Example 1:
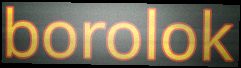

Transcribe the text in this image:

borolok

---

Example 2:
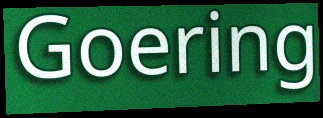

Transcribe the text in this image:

Goering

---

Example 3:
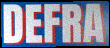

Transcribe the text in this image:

DEFRA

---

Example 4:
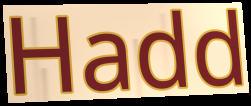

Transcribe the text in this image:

Hadd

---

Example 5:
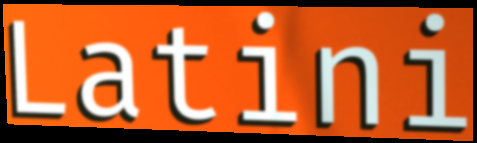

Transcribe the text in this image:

Latini